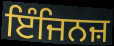
ਇੰਜਿਨਜ਼